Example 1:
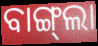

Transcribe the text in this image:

ବାଙ୍ଗ୍‍ଲା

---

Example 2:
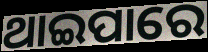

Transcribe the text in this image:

ଥାଇପାରେ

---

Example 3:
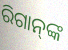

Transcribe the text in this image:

ରିଗାନ୍‌ଙ୍କ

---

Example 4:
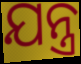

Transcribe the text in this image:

ଯନ୍ତ୍ର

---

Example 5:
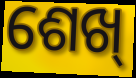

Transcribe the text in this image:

ଶେଖ୍